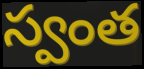
స్వంత